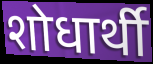
शोधार्थी